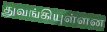
துவங்கியுள்ளன